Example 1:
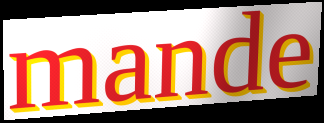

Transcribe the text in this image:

mande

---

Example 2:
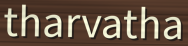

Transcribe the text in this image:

tharvatha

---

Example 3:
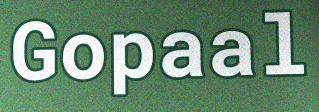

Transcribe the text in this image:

Gopaal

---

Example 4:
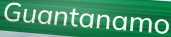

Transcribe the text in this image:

Guantanamo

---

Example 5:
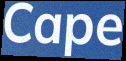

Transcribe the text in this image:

Cape